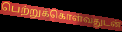
பெற்றுக்கொள்வதுடன்